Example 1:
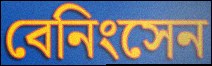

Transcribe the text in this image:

বেনিংসেন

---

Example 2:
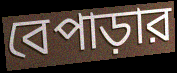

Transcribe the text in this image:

বেপাড়ার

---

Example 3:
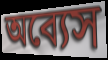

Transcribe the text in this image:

অব্যেস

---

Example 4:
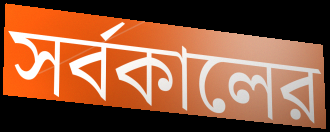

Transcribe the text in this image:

সর্বকালের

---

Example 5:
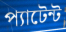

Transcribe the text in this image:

প্যাটেন্ট